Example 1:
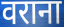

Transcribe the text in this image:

वराना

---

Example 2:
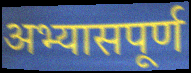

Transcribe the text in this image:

अभ्यासपूर्ण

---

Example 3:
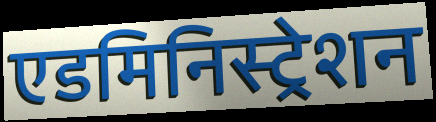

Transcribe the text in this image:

एडमिनिस्ट्रेशन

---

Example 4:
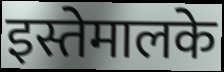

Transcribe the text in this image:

इस्तेमालके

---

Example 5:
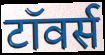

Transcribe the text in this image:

टॉवर्स